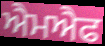
ਐਮਐਫ